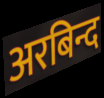
अरबिन्द